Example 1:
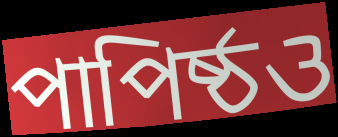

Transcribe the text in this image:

পাপিষ্ঠও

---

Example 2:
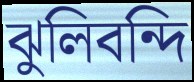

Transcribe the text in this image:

ঝুলিবন্দি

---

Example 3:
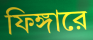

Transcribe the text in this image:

ফিঙ্গারে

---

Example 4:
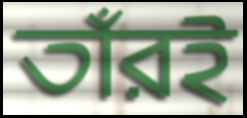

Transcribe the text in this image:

তাঁরই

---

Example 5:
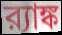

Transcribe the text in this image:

র‍্যাঙ্ক